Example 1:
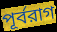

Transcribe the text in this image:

পূর্বরাগ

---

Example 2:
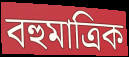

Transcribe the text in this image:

বহুমাত্রিক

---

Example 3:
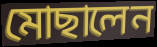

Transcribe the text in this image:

মোছালেন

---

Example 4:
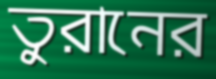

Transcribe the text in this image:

তুরানের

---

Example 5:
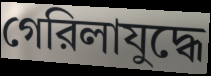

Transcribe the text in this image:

গেরিলাযুদ্ধে